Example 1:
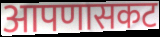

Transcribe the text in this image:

आपणासकट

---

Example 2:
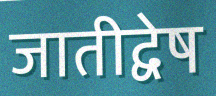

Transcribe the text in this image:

जातीद्वेष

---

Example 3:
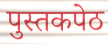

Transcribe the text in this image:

पुस्तकपेठ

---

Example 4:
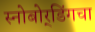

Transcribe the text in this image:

स्नोबोर्डिंगचा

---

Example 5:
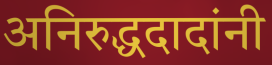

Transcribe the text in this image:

अनिरुद्धदादांनी